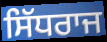
ਸਿੱਧਰਾਜ